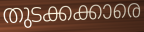
തുടക്കക്കാരെ